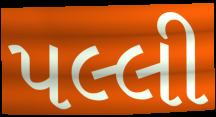
પલ્લી